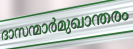
ദാസന്മാർമുഖാന്തരം